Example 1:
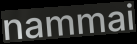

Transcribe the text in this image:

nammai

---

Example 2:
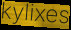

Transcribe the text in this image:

kylixes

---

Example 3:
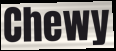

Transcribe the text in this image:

Chewy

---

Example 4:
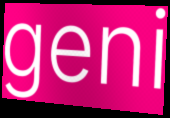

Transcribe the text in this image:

geni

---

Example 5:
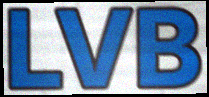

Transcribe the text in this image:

LVB